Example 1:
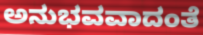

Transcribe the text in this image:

ಅನುಭವವಾದಂತೆ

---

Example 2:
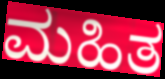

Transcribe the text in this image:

ಮಹಿತ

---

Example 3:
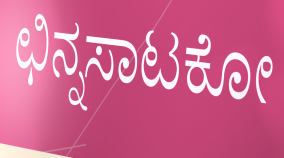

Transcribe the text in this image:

ಛಿನ್ನಸಾಟಕೋ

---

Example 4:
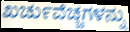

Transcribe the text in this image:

ಖರ್ಚುವೆಚ್ಚಗಳನ್ನು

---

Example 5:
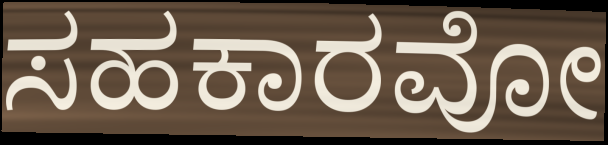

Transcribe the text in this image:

ಸಹಕಾರವೋ